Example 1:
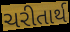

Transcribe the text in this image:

ચરીતાર્થ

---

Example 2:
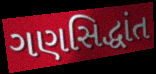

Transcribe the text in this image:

ગણસિદ્ધાંત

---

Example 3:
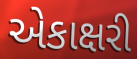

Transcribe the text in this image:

એકાક્ષરી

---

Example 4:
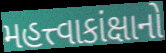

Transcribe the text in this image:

મહત્ત્વાકાંક્ષાનો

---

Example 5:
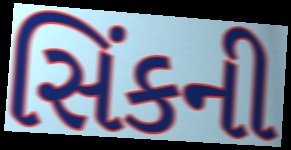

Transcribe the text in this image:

સિંકની